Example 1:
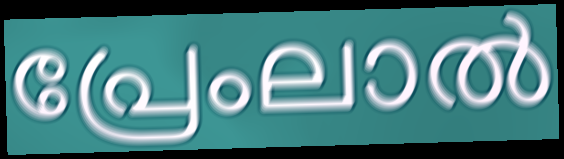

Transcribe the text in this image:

പ്രേംലാൽ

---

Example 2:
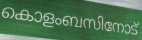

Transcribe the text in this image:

കൊളംബസിനോട്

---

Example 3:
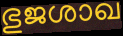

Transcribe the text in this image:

ഭുജശാഖ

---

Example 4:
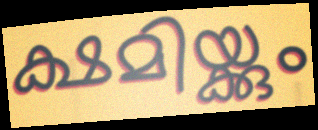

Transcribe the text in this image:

ക്ഷമിയ്ക്കും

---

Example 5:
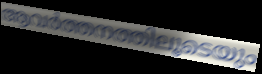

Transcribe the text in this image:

ആവർത്തനത്തിലൂടെയും